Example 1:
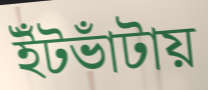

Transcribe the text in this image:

ইঁটভাঁটায়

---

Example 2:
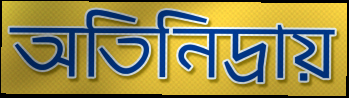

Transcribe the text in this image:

অতিনিদ্রায়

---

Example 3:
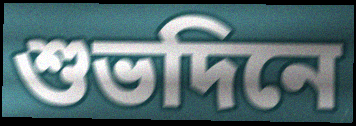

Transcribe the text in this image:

শুভদিনে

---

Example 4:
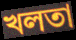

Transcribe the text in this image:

খলতা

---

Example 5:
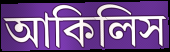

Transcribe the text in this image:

আকিলিস